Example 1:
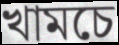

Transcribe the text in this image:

খামচে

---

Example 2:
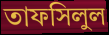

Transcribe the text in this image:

তাফসিলুল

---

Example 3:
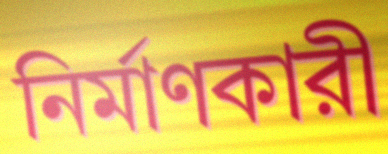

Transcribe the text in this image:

নির্মাণকারী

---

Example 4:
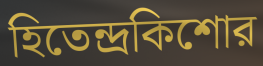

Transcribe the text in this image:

হিতেন্দ্রকিশোর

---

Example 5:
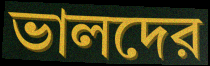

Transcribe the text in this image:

ভালদের